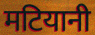
मटियानी